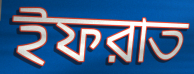
ইফরাত